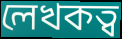
লেখকত্ব